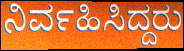
ನಿರ್ವಹಿಸಿದ್ದರು